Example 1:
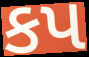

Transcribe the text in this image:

કપ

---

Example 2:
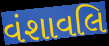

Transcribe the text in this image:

વંશાવલિ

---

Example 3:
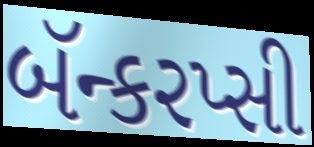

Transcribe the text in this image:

બૅન્કરપ્સી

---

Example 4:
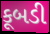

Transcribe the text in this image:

કૂબડી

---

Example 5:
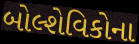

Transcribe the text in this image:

બોલ્શેવિકોના